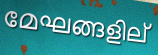
മേഘങ്ങളില്